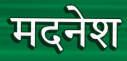
मदनेश